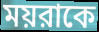
ময়রাকে